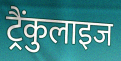
ट्रैंकुलाइज